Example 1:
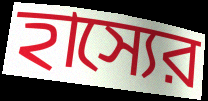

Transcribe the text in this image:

হাস্যের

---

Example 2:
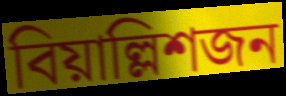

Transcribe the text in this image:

বিয়াল্লিশজন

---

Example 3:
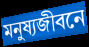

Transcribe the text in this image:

মনুষ্যজীবনে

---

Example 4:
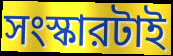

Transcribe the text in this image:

সংস্কারটাই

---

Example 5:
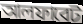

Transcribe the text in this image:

আলফাবেট